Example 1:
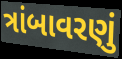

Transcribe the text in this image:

ત્રાંબાવરણું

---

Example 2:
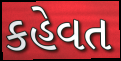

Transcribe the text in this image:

કહેવત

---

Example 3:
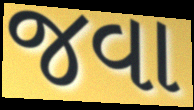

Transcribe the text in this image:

જવા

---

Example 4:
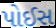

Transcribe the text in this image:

પોઈસ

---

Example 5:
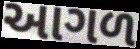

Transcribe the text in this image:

આગળ